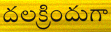
దలక్రిందుగా